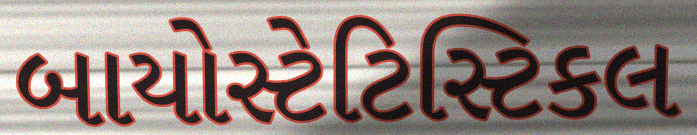
બાયોસ્ટેટિસ્ટિકલ